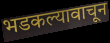
भडकल्यावाचून